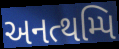
અનત્થમ્પિ